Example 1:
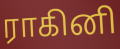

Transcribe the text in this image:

ராகினி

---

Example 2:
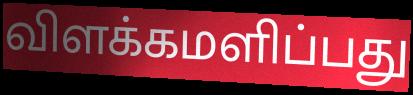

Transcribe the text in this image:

விளக்கமளிப்பது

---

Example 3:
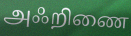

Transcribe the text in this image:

அஃறிணை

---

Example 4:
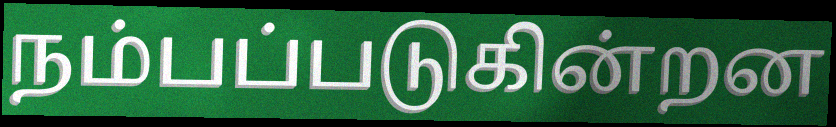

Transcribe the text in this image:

நம்பப்படுகின்றன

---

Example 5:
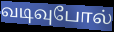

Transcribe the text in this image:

வடிவுபோல்